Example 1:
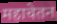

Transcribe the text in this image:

महाचेतन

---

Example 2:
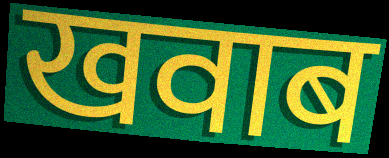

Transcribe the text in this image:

खवाब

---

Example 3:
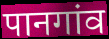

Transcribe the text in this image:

पानगांव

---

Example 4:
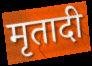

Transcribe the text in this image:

मृतादी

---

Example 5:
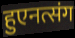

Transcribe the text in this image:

हुएनत्संग